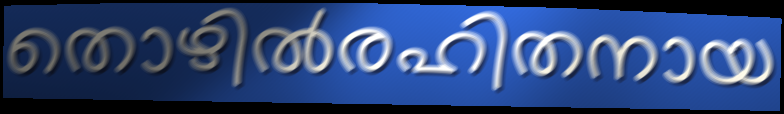
തൊഴിൽരഹിതനായ